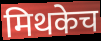
मिथकेच